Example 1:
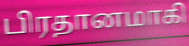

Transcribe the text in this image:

பிரதானமாகி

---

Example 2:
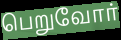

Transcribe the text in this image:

பெறுவோர்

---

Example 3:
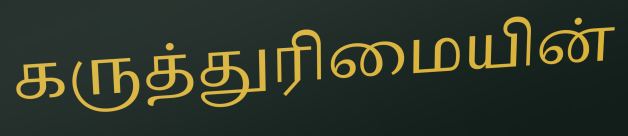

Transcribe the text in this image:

கருத்துரிமையின்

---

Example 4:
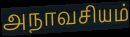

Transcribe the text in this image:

அநாவசியம்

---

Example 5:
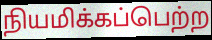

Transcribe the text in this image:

நியமிக்கப்பெற்ற